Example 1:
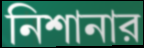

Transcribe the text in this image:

নিশানার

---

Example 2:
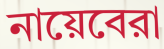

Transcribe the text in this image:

নায়েবেরা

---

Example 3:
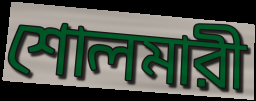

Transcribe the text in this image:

শোলমারী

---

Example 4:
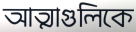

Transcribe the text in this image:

আত্মাগুলিকে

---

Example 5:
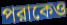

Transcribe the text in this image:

পরাকেও